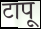
टापू